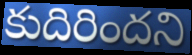
కుదిరిందని